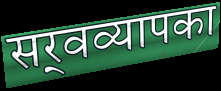
सर्वव्यापका